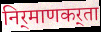
निर्माणकर्ता